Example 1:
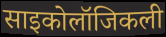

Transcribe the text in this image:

साइकोलॉजिकली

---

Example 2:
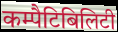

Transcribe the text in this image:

कम्पैटिबिलिटी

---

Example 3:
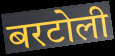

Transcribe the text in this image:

बरटोली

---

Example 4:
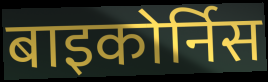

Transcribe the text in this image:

बाइकोर्निस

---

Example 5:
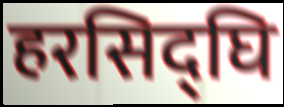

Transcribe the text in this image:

हरसिद्घि